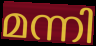
മന്നി